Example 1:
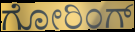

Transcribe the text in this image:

ಗೋರಿಂಗ್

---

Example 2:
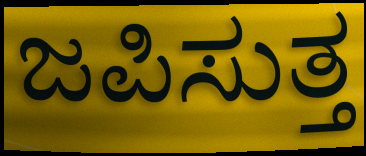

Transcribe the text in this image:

ಜಪಿಸುತ್ತ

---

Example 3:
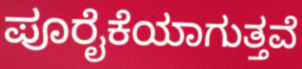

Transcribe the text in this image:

ಪೂರೈಕೆಯಾಗುತ್ತವೆ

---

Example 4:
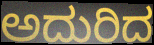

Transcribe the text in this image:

ಅದುರಿದ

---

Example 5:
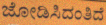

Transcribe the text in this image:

ಜೋಡಿಸಿದಂತಿದೆ